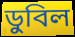
ডুবিল